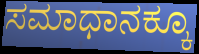
ಸಮಾಧಾನಕ್ಕೂ